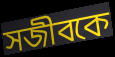
সজীবকে